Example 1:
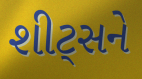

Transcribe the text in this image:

શીટ્સને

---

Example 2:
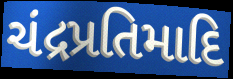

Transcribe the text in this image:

ચંદ્રપ્રતિમાદિ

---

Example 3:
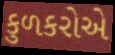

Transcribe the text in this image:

કુળકરોએ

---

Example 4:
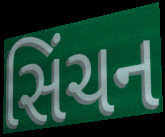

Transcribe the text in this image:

સિંચન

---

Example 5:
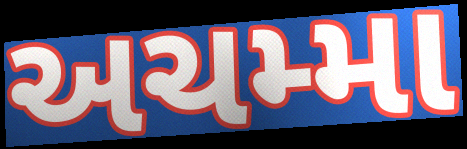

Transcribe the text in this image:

અચમ્મા